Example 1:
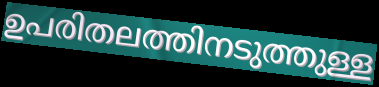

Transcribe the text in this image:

ഉപരിതലത്തിനടുത്തുള്ള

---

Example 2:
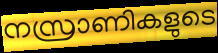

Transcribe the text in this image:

നസ്രാണികളുടെ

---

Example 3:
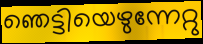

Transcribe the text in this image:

ഞെട്ടിയെഴുന്നേറ്റു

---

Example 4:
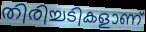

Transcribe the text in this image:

തിരിച്ചടികളാണ്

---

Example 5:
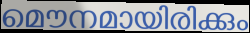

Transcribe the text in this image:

മൌനമായിരിക്കും